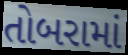
તોબરામાં